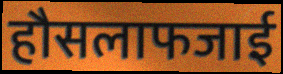
हौसलाफजाई